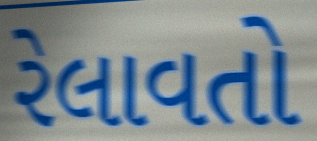
રેલાવતો